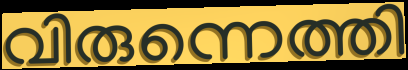
വിരുന്നെത്തി